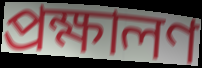
প্রক্ষালণ